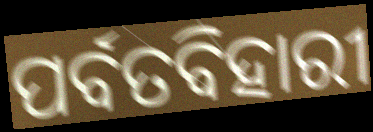
ପର୍ବତବିହାରୀ